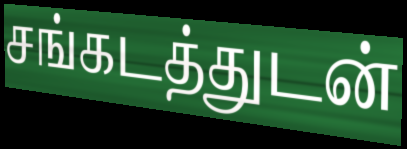
சங்கடத்துடன்